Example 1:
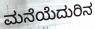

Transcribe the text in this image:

ಮನೆಯೆದುರಿನ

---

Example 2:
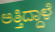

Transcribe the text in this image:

ಅತ್ತಿದ್ದಾಳೆ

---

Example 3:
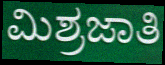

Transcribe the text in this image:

ಮಿಶ್ರಜಾತಿ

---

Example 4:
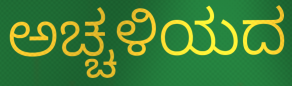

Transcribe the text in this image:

ಅಚ್ಚಳಿಯದ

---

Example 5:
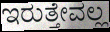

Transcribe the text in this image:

ಇರುತ್ತೇವಲ್ಲ